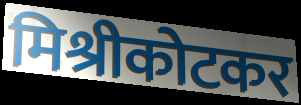
मिश्रीकोटकर